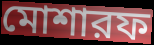
মোশারফ